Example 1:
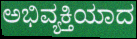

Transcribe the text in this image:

ಅಭಿವ್ಯಕ್ತಿಯಾದ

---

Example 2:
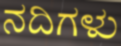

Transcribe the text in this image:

ನದಿಗಳು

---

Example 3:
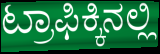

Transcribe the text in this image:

ಟ್ರಾಫಿಕ್ಕಿನಲ್ಲಿ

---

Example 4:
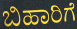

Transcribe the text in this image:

ಬಿಹಾರಿಗೆ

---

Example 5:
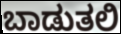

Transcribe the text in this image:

ಬಾಡುತಲಿ